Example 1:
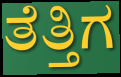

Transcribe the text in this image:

ತೆತ್ತಿಗ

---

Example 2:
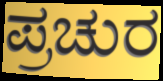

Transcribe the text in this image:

ಪ್ರಚುರ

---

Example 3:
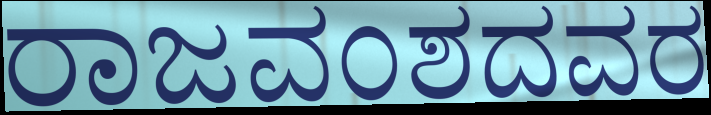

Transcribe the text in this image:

ರಾಜವಂಶದವರ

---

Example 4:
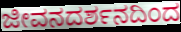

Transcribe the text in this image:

ಜೀವನದರ್ಶನದಿಂದ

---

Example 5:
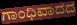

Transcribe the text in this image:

ಗಾಂಧಿವಾದದ